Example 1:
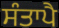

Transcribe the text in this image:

ਸੰਤਾਪੈ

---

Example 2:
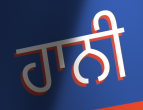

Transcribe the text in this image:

ਹਾਨੀ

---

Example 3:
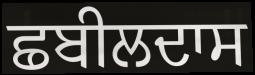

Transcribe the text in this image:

ਛਬੀਲਦਾਸ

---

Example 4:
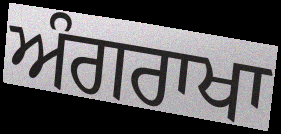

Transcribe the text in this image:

ਅੰਗਰਾਖਾ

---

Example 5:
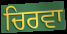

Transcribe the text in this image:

ਚਿਰਵਾ